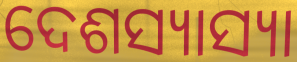
ଦେଶସ୍ୟାସ୍ୟା